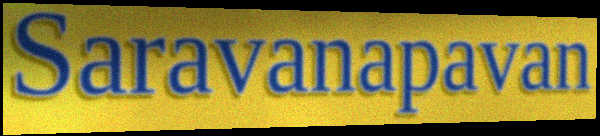
Saravanapavan